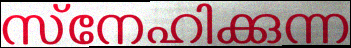
സ്‌നേഹിക്കുന്ന